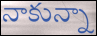
నాకున్నా